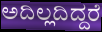
ಅದಿಲ್ಲದಿದ್ದರೆ